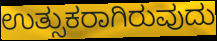
ಉತ್ಸುಕರಾಗಿರುವುದು